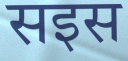
सइस